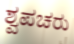
ಶ್ವಪಚರು